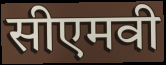
सीएमवी